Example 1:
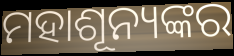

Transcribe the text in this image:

ମହାଶୂନ୍ୟଙ୍କର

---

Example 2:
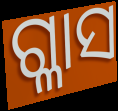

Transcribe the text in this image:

ଗ୍ଳାସ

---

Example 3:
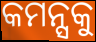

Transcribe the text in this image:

କମନ୍ସକୁ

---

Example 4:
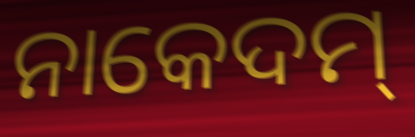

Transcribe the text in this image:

ନାକେଦମ୍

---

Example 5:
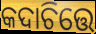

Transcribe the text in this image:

କଦାଚିତ୍ତେ